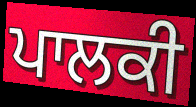
ਪਾਲਕੀ